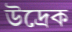
উদ্রেক